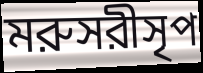
মরুসরীসৃপ